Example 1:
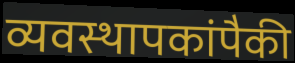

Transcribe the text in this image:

व्यवस्थापकांपैकी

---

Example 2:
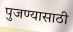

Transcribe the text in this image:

पुजण्यासाठी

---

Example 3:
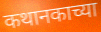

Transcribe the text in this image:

कथानकाच्या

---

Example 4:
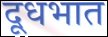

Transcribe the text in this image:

दूधभात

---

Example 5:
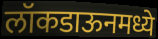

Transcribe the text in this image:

लॉकडाऊनमध्ये